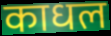
काधल